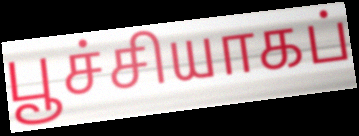
பூச்சியாகப்